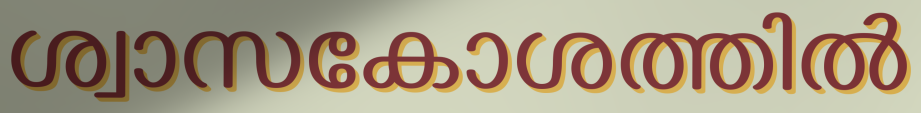
ശ്വാസകോശത്തിൽ